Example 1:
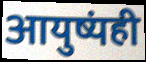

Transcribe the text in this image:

आयुष्यंही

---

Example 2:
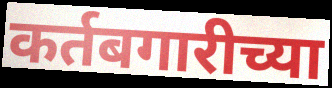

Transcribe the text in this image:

कर्तबगारीच्या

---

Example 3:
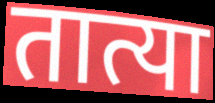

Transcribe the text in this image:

तात्या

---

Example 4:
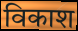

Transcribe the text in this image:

विकाश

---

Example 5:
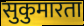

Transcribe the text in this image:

सुकुमारता